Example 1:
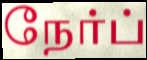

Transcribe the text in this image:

நேர்ப்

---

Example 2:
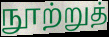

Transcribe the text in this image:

நூற்றுத்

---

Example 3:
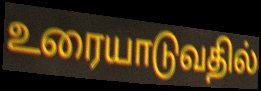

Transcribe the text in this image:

உரையாடுவதில்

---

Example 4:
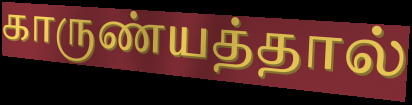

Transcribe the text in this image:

காருண்யத்தால்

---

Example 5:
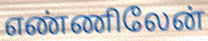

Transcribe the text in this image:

எண்ணிலேன்